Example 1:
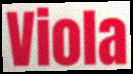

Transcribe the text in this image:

Viola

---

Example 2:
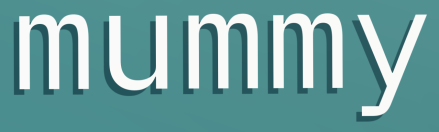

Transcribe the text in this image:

mummy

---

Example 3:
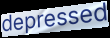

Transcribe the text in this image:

depressed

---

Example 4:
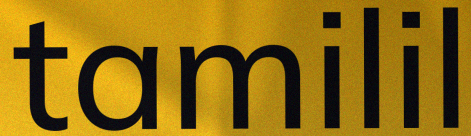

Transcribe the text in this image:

tamilil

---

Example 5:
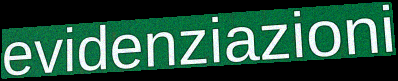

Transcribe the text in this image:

evidenziazioni